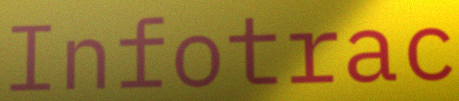
Infotrac